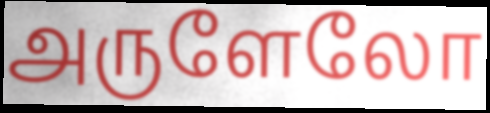
அருளேலோ